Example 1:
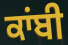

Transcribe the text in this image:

ਕਾਂਬੀ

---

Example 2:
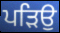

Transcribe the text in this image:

ਪੜਿਉ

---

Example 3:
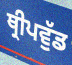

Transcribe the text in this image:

ਥ੍ਰੀਪਵੁੱਡ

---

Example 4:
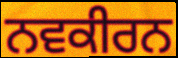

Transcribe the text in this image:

ਨਵਕੀਰਨ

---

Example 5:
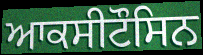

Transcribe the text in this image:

ਆਕਸੀਟੌਸਿਨ